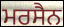
ਮਰਸੈਨ